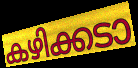
കഴിക്കടാ